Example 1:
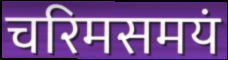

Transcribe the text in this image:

चरिमसमयं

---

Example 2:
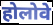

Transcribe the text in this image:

होलोवे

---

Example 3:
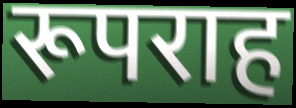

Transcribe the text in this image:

रूपराह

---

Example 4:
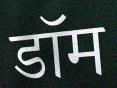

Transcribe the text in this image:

डॉम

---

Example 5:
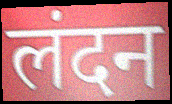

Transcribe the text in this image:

लंदन